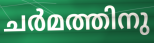
ചർമത്തിനു